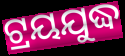
ଟ୍ରୟଯୁଦ୍ଧ